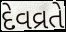
દેવવ્રતે